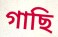
গাছি